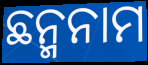
ଛନ୍ମନାମ